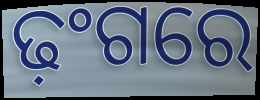
ଢ଼ଂଗରେ